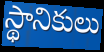
స్థానికులు